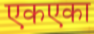
एकएका